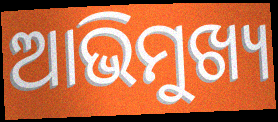
ଆଭିମୁଖ୍ୟ